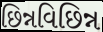
છિન્નવિછિન્ન